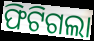
ଫିଟିଗଲା